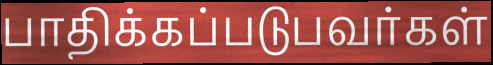
பாதிக்கப்படுபவர்கள்